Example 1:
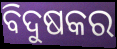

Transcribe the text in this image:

ବିଦୁଷକର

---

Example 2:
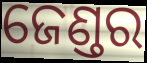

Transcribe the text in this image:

ଜେଣ୍ଡର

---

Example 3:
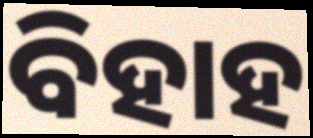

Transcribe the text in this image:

ବିହାହ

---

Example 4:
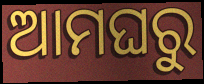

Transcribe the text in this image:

ଆମଘରୁ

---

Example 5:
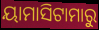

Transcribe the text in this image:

ୟାମାସିଟାମାରୁ